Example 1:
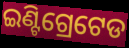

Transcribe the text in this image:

ଇଣ୍ଟିଗ୍ରେଟେଡ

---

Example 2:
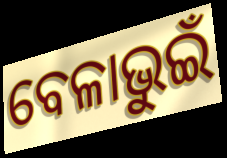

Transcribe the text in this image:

ବେଳାଭୁଇଁ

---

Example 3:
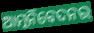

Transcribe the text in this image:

ଆତ୍ମନିବେଦନର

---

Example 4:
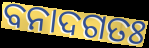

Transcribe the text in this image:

ବନାଦଗତଃ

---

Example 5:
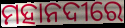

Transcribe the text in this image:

ମହାନଦୀରେ